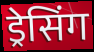
ड्रेसिंग